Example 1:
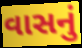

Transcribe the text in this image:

વાસનું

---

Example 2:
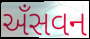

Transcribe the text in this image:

અઁસવન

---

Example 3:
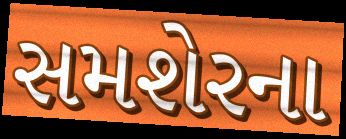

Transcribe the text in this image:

સમશેરના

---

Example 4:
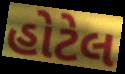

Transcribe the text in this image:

હોટેલ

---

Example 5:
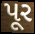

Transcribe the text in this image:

પૂર